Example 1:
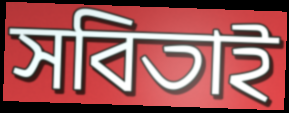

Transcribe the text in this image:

সবিতাই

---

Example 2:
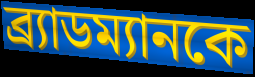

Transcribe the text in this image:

ব্র্যাডম্যানকে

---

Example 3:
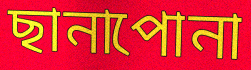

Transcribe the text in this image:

ছানাপোনা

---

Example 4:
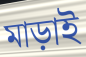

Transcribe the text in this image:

মাড়াই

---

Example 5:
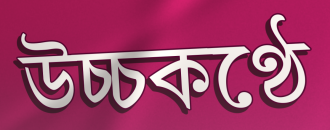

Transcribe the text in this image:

উচ্চকণ্ঠে